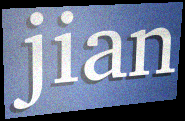
jian